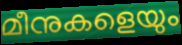
മീനുകളെയും